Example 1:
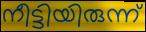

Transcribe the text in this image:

നീട്ടിയിരുന്ന്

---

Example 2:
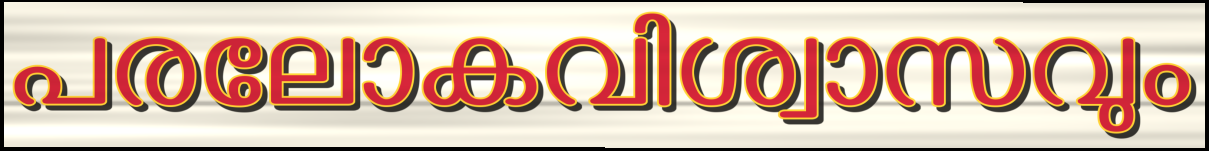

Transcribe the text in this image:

പരലോകവിശ്വാസവും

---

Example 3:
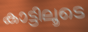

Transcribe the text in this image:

കാട്ടിലൂടെ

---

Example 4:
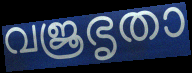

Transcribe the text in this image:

വജ്രഭൃതാ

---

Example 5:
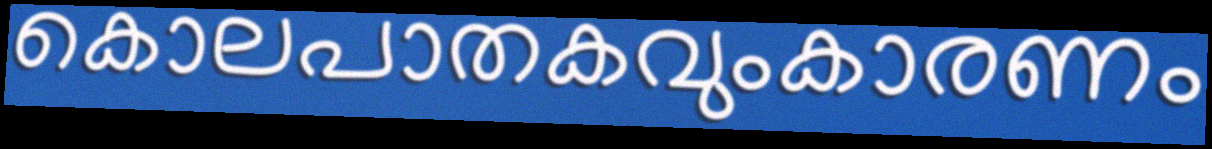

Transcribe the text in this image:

കൊലപാതകവുംകാരണം